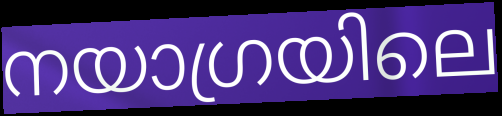
നയാഗ്രയിലെ